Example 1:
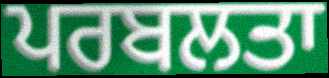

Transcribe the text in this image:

ਪਰਬਲਤਾ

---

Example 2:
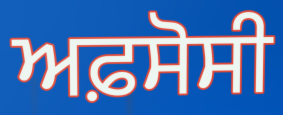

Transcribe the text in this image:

ਅਫ਼ਸੋਸੀ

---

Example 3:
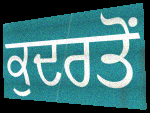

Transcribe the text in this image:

ਕੁਦਰਤੋਂ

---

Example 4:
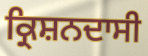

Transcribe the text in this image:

ਕ੍ਰਿਸ਼ਨਦਾਸੀ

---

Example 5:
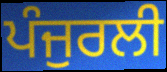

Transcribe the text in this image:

ਪੰਜੁਰਲੀ